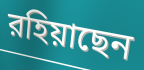
রহিয়াছেন